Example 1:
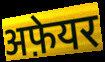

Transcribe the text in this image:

अफ़ेयर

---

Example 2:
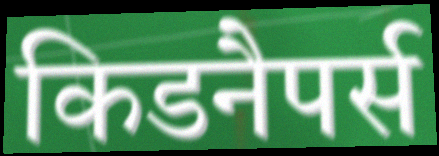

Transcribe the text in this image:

किडनैपर्स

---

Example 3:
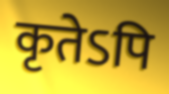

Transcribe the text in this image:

कृतेऽपि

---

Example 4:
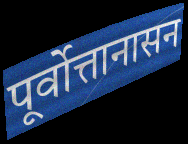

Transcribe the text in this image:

पूर्वोत्तानासन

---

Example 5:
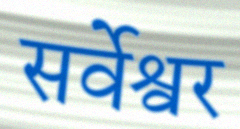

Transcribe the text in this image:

सर्वेश्वर